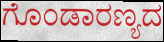
ಗೊಂಡಾರಣ್ಯದ